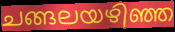
ചങ്ങലയഴിഞ്ഞ